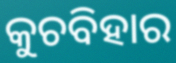
କୁଚବିହାର